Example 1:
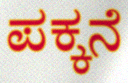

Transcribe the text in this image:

ಪಕ್ಕನೆ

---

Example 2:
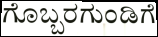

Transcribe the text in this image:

ಗೊಬ್ಬರಗುಂಡಿಗೆ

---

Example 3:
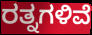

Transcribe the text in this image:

ರತ್ನಗಳಿವೆ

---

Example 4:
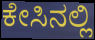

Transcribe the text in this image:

ಕೇಸಿನಲ್ಲಿ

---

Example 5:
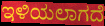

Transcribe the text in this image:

ಇಳಿಯಲಾಗದೆ